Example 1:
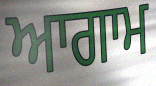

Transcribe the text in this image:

ਆਗਾਮ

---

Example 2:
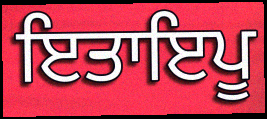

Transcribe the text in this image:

ਇਤਾਇਪੂ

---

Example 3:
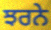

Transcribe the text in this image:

ਝਰਨੇ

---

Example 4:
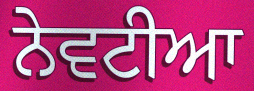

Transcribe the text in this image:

ਨੇਵਟੀਆ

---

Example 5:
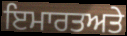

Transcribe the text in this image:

ਇਮਾਰਤਅਤੇ